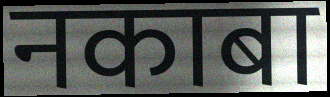
नकाबा